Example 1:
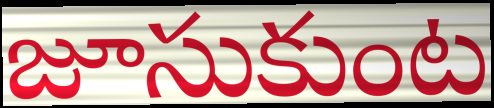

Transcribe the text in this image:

జూసుకుంట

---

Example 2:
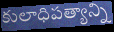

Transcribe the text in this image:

కులాధిపత్యాన్ని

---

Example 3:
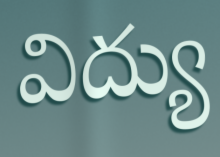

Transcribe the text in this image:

విద్యు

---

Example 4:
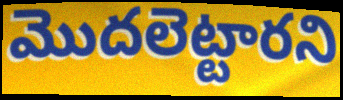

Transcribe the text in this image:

మొదలెట్టారని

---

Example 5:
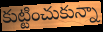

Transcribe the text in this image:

కుట్టించుకున్నా